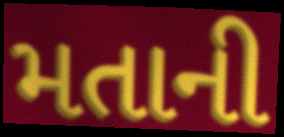
મતાની